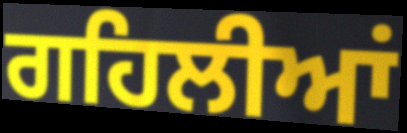
ਗਹਿਲੀਆਂ